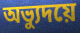
অভ্যুদয়ে